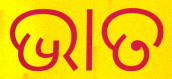
ଭାତ